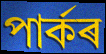
পাৰ্কৰ